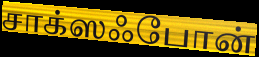
சாக்ஸஃபோன்